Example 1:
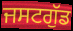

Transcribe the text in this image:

ਜਸਟਗੁੱਡ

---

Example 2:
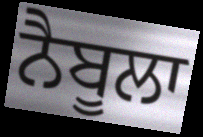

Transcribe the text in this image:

ਨੈਬੂਲਾ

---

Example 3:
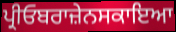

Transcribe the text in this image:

ਪ੍ਰੀਓਬਰਾਜ਼ੇਨਸਕਾਇਆ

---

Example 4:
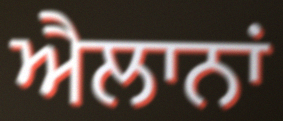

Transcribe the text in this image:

ਐਲਾਨਾਂ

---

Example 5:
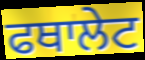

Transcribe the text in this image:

ਫਥਾਲੇਟ